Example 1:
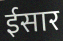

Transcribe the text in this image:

ईसार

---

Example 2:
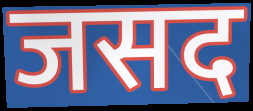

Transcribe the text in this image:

जसद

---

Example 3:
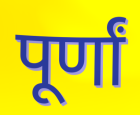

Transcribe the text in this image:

पूर्णां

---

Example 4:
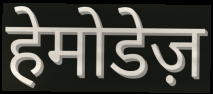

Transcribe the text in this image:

हेमोडेज़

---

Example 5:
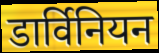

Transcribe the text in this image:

डार्विनियन